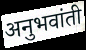
अनुभवांती